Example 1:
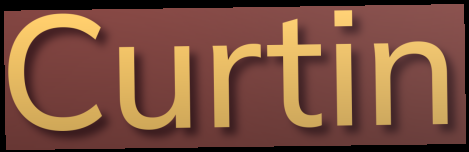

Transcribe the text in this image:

Curtin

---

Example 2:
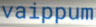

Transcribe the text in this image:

vaippum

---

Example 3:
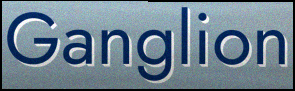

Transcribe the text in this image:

Ganglion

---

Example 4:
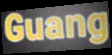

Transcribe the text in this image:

Guang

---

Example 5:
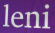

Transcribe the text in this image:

leni